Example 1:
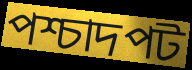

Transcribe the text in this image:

পশ্চাদপট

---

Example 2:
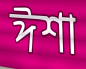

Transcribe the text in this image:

ঈশা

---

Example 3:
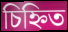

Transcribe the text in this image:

চিহ্নিত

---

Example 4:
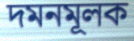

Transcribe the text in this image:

দমনমূলক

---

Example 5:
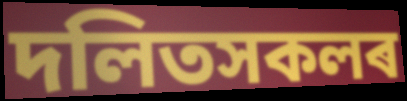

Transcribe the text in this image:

দলিতসকলৰ